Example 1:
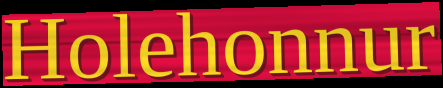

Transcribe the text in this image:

Holehonnur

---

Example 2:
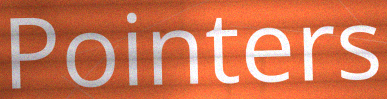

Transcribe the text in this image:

Pointers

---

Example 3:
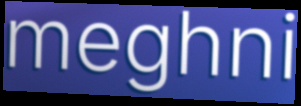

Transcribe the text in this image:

meghni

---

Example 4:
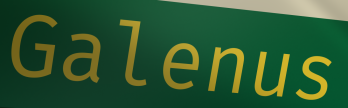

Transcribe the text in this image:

Galenus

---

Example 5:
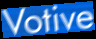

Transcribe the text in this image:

Votive